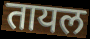
तायल